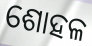
ଶୋହଳ